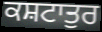
ਕਸ਼ਟਾਤੁਰ